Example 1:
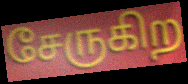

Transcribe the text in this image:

சேருகிற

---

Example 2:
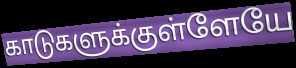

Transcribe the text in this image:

காடுகளுக்குள்ளேயே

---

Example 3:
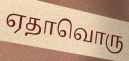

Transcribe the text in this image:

ஏதாவொரு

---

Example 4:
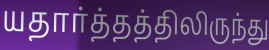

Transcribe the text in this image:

யதார்த்தத்திலிருந்து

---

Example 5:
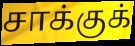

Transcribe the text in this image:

சாக்குக்